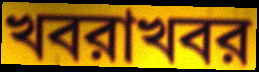
খবরাখবর